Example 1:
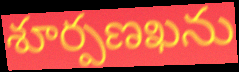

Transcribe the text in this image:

శూర్పణఖను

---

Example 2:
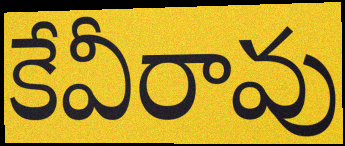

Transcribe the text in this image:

కేవీరావు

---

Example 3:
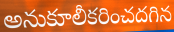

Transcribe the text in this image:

అనుకూలీకరించదగిన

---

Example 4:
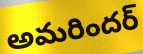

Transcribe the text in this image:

అమరిందర్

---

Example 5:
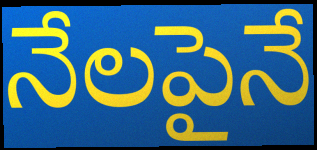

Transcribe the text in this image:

నేలపైనే